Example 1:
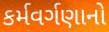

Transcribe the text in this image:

કર્મવર્ગણાનો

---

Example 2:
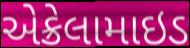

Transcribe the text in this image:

એક્રેલામાઇડ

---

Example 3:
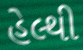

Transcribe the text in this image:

હેલ્થી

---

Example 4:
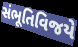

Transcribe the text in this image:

સંભૂતિવિજયે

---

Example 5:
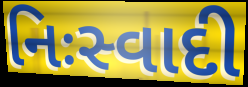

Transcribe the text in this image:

નિઃસ્વાદી